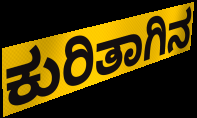
ಕುರಿತಾಗಿನ